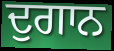
ਦੁਗਾਨ